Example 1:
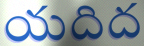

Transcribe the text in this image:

యదిద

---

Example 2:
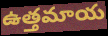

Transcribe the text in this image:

ఉత్తమాయ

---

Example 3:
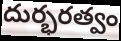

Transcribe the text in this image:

దుర్భరత్వం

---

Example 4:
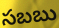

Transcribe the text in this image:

సబబు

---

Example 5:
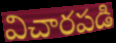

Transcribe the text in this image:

విచారపడి